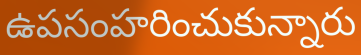
ఉపసంహరించుకున్నారు